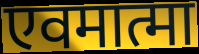
एवमात्मा